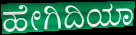
ಹೇಗಿದಿಯಾ